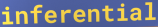
inferential